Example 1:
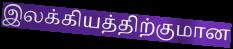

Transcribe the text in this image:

இலக்கியத்திற்குமான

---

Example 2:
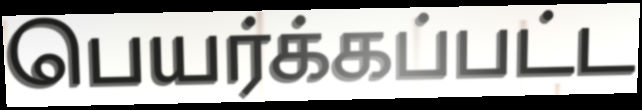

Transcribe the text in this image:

பெயர்க்கப்பட்ட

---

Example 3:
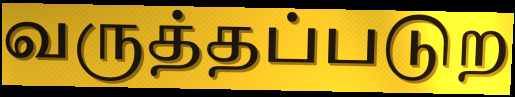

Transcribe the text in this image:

வருத்தப்படுற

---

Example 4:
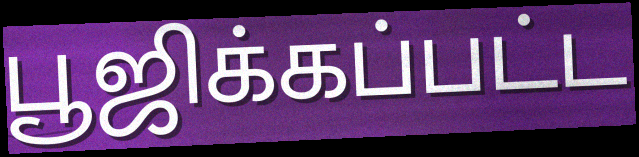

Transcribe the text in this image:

பூஜிக்கப்பட்ட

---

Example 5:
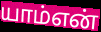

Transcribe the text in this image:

யாம்என்